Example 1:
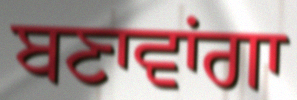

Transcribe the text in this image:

ਬਣਾਵਾਂਗਾ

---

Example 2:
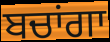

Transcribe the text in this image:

ਬਚਾਂਗਾ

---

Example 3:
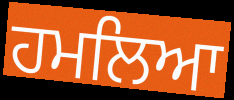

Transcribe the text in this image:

ਹਮਲਿਆ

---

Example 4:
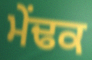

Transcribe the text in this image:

ਮੇਂਢਕ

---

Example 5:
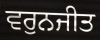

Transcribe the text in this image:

ਵਰੁਨਜੀਤ